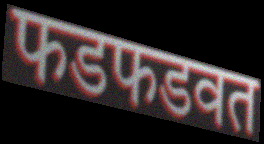
फडफडवत